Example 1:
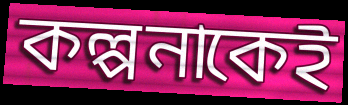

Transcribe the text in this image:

কল্পনাকেই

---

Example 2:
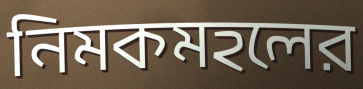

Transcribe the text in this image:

নিমকমহলের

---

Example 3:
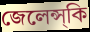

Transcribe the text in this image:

জেলেন্স্কি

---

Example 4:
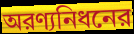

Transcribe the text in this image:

অরণ্যনিধনের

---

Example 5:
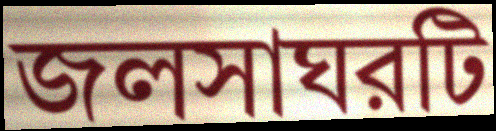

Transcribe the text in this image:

জলসাঘরটি